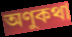
অণুকথা